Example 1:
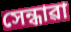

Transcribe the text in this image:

সেন্ধাৱা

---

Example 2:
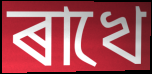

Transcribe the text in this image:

ৰাখে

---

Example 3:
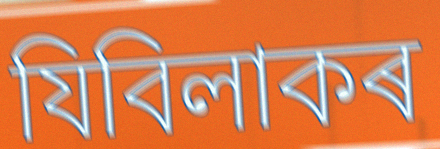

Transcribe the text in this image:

যিবিলাকৰ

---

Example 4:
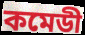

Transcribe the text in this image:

কমেডী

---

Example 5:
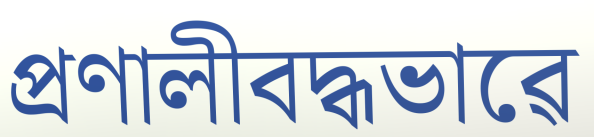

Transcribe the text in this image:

প্ৰণালীবদ্ধভাৱে